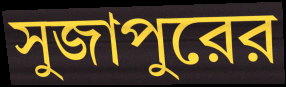
সুজাপুরের